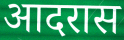
आदरास